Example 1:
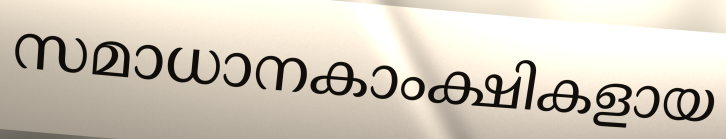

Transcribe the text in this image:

സമാധാനകാംക്ഷികളായ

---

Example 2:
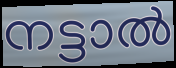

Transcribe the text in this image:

നട്ടാൽ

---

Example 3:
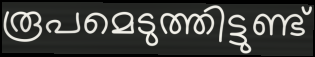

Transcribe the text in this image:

രൂപമെടുത്തിട്ടുണ്ട്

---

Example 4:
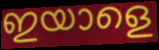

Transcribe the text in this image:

ഇയാളെ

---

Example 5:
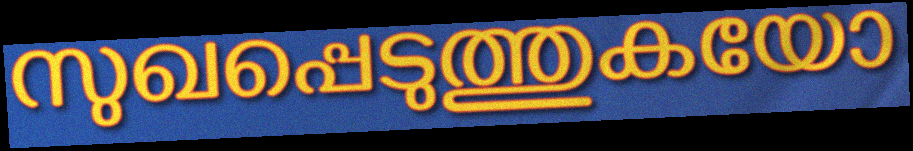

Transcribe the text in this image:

സുഖപ്പെടുത്തുകയോ